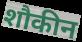
शौकीन